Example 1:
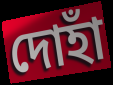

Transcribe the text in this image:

দোহাঁ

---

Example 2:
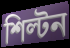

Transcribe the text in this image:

শিল্টন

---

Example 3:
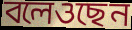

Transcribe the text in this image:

বলেওছেন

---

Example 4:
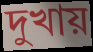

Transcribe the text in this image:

দুখায়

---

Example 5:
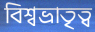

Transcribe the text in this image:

বিশ্বভ্রাতৃত্ব